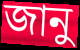
জানু